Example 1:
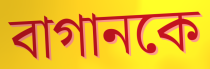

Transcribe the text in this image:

বাগানকে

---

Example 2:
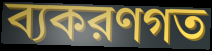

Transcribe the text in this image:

ব্যকরণগত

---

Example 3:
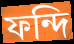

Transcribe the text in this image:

ফন্দি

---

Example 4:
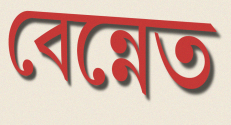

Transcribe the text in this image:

বেন্নেত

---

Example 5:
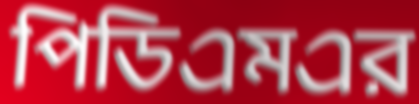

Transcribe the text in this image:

পিডিএমএর